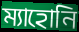
ম্যাহোনি